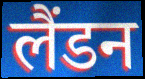
लैंडन